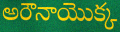
అరౌనాయొక్క